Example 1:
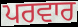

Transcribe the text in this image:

ਪਰਵਾਰ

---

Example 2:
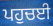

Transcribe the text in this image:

ਪਹੁਚਈ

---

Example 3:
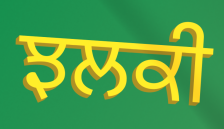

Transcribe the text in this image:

ਝਲਕੀ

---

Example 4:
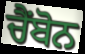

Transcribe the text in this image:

ਚੈਂਬੋਨ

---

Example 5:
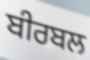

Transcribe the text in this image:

ਬੀਰਬਲ